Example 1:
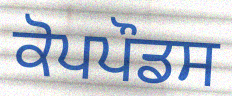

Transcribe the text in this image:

ਕੋਪਪੌਡਸ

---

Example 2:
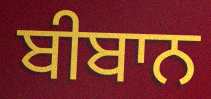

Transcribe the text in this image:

ਬੀਬਾਨ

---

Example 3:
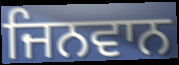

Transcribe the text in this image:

ਜਿਨਵਾਨ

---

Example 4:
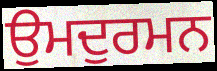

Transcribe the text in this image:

ਉਮਦੁਰਮਨ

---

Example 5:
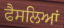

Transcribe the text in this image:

ਫੈਸਲਿਆਂ